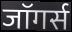
जॉगर्स